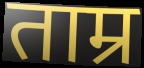
ताम्र